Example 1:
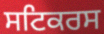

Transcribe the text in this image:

ਸਟਿਕਰਸ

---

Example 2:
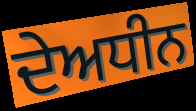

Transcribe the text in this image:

ਦੇਅਧੀਨ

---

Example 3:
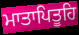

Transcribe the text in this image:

ਮਾਤਾਪਿਤੂਹਿ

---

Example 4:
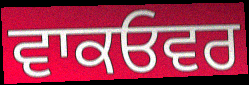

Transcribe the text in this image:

ਵਾਕਓਵਰ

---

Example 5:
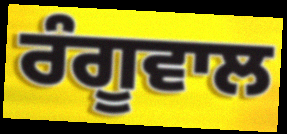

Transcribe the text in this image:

ਰੰਗੂਵਾਲ